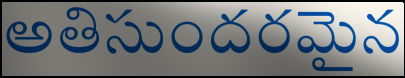
అతిసుందరమైన